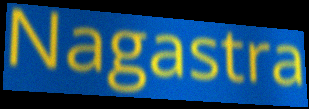
Nagastra